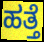
ಹತ್ತೆ